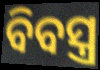
ବିବସ୍ତ୍ର